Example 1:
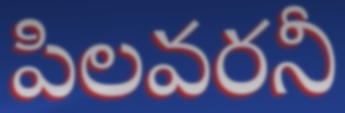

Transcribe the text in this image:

పిలవరనీ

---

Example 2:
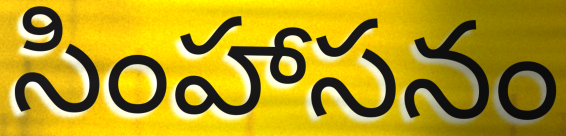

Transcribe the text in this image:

సింహాసనం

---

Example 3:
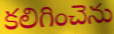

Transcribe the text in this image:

కలిగించెను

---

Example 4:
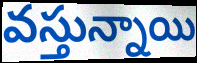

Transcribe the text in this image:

వస్తున్నాయి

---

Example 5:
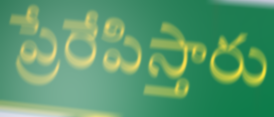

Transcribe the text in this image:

ప్రేరేపిస్తారు